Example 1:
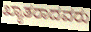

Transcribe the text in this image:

ಖ್ಯಾತರಾದವರು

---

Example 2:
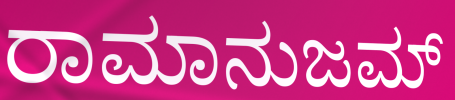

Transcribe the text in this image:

ರಾಮಾನುಜಮ್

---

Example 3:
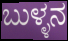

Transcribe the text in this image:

ಬುಳ್ಳನ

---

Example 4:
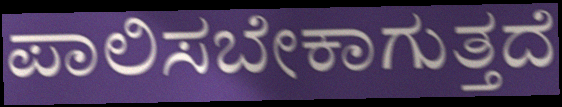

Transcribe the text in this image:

ಪಾಲಿಸಬೇಕಾಗುತ್ತದೆ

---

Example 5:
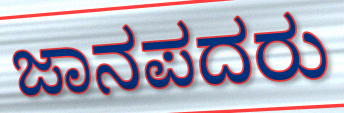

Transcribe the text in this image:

ಜಾನಪದರು